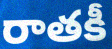
రాతకీ